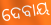
ଦେବାୟ